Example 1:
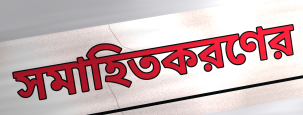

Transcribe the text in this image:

সমাহিতকরণের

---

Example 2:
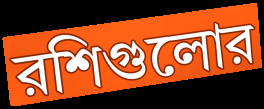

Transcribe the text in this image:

রশিগুলোর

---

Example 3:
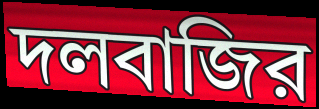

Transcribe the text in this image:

দলবাজির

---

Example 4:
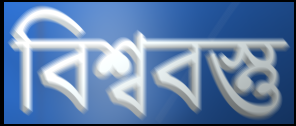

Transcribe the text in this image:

বিশ্ববস্তু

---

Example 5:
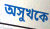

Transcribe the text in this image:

অসুখকে